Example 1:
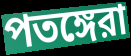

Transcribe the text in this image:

পতঙ্গেরা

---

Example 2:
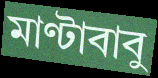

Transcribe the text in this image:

মাণ্টাবাবু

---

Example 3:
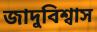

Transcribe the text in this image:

জাদুবিশ্বাস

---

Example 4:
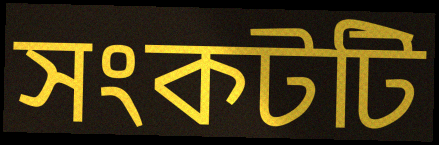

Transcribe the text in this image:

সংকটটি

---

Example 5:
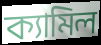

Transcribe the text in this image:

ক্যামিল